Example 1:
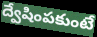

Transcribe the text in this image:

ద్వేషింపకుంటే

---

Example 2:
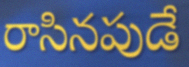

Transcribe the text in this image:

రాసినపుడే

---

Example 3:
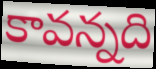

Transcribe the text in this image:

కావన్నది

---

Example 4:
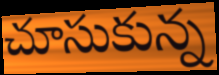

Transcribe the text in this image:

చూసుకున్న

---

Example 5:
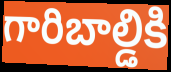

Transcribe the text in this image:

గారిబాల్డికి